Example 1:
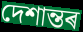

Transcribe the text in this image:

দেশান্তৰ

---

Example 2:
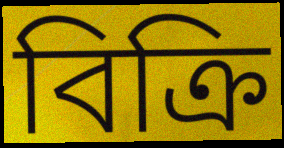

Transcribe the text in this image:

বিক্ৰি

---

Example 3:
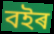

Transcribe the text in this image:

বইৰ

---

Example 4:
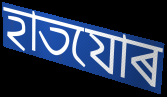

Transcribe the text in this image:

হাতযোৰ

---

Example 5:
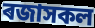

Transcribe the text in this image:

ৰজাসকল